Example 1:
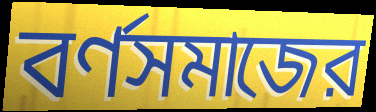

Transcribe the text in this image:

বর্ণসমাজের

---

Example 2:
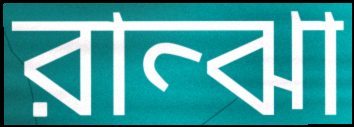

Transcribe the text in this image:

রান্ঝা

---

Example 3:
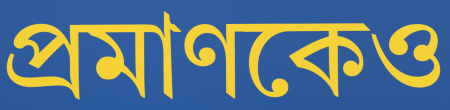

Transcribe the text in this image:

প্রমাণকেও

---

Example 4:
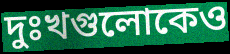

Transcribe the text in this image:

দুঃখগুলোকেও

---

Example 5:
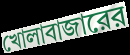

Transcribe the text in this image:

খোলাবাজারের